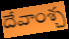
దేవాంశ్చ